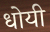
धोयी